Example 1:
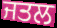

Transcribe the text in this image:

ਜਤਲ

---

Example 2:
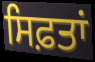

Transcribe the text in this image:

ਸਿਫ਼ਤਾਂ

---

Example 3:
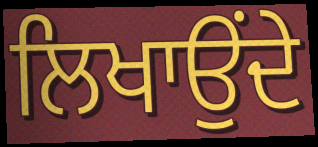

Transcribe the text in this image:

ਲਿਖਾਉਂਦੇ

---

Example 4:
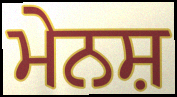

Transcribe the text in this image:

ਮੇਨਸ਼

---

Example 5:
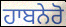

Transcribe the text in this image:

ਹਾਬਨੇਰੋ